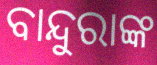
ବାନ୍ଦୁରାଙ୍କ